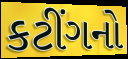
કટીંગનો